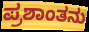
ಪ್ರಶಾಂತನು